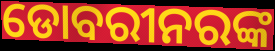
ଡୋବରୀନରଙ୍କ